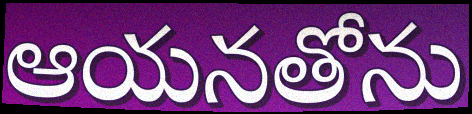
ఆయనతోను